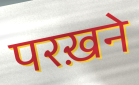
परख़ने